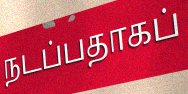
நடப்பதாகப்